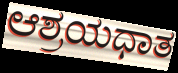
ಆಶ್ರಯಧಾತ